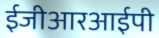
ईजीआरआईपी